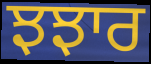
ਝਝਾਰ